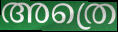
അത്രെ